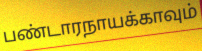
பண்டாரநாயக்காவும்